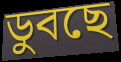
ডুবছে